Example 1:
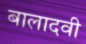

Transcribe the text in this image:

बालादवी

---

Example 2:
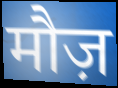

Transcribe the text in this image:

मौज़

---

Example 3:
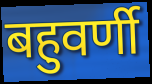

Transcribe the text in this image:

बहुवर्णी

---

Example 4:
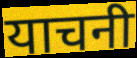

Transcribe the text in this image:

याचनी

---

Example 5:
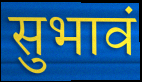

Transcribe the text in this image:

सुभावं